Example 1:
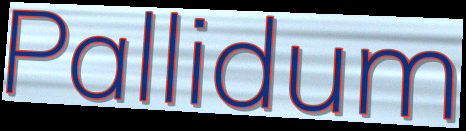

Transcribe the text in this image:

Pallidum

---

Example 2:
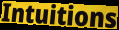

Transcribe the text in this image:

Intuitions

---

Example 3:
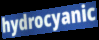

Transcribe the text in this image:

hydrocyanic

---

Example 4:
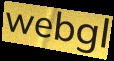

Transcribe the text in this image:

webgl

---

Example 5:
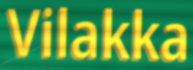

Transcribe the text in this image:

Vilakka